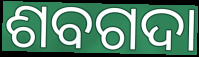
ଶବଗଦା